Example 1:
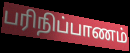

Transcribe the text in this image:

பரிநிப்பாணம்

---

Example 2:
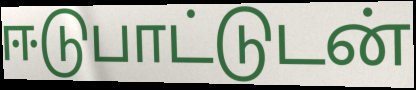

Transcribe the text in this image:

ஈடுபாட்டுடன்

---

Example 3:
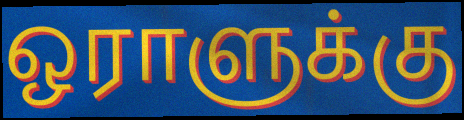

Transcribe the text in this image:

ஒராளுக்கு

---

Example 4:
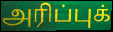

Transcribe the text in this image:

அரிப்புக்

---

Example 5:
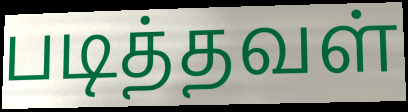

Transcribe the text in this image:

படித்தவள்